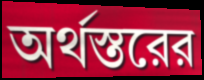
অর্থস্তরের